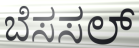
ಬೆಸಸಲ್